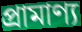
প্রামাণ্য